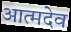
आत्मदेव